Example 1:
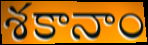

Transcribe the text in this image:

శకానాం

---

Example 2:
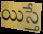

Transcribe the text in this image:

యిస్తే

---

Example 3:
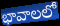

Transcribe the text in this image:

భావాలలో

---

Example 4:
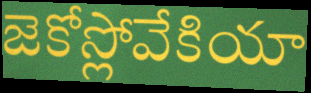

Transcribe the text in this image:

జెకోస్లోవేకియా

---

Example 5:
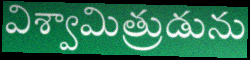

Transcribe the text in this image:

విశ్వామిత్రుడును